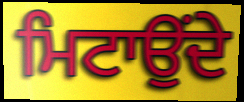
ਮਿਟਾਉਂਦੇ